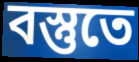
বস্তুতে